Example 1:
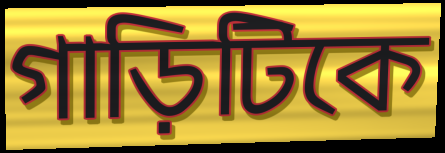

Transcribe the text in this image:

গাড়িটিকে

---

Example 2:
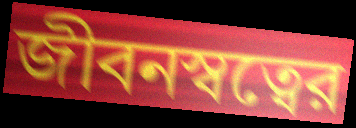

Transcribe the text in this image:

জীবনস্বত্বের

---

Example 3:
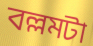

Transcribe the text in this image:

বল্লমটা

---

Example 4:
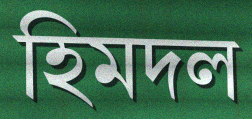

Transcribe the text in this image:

হিমদল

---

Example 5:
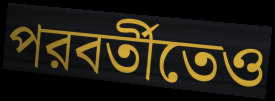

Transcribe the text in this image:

পরবর্তীতেও